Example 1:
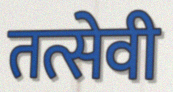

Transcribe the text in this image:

तत्सेवी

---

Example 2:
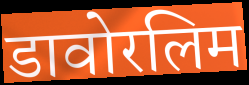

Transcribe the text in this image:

डावोरलिम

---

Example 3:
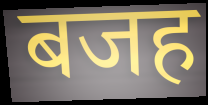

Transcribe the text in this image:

बजह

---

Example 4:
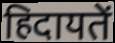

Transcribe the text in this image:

हिदायतें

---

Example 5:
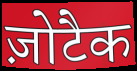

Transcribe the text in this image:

ज़ोटैक